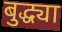
बुद्ध्या